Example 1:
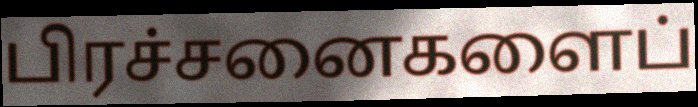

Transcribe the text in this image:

பிரச்சனைகளைப்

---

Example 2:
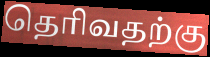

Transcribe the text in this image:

தெரிவதற்கு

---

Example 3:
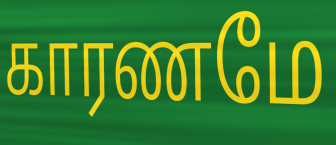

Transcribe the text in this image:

காரணமே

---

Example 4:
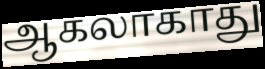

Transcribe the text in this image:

ஆகலாகாது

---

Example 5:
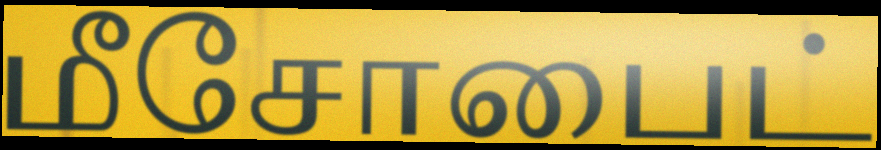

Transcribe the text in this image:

மீசோபைட்